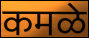
कमळे